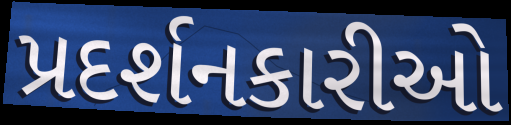
પ્રદર્શનકારીઓ